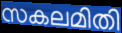
സകലമിതി